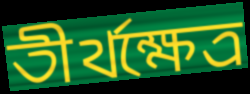
তীর্থক্ষেত্র